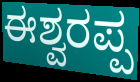
ಈಶ್ವರಪ್ಪ